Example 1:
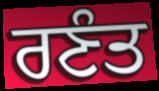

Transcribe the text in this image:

ਰਣੰਤ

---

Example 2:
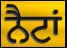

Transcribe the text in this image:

ਨੈਟਾਂ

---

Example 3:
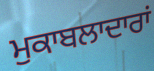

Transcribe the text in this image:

ਮੁਕਾਬਲਾਦਾਰਾਂ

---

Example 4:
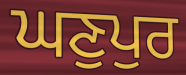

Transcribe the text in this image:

ਘਣੁਪੁਰ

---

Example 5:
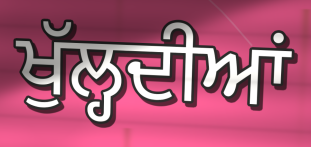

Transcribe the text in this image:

ਖੁੱਲ੍ਹਦੀਆਂ